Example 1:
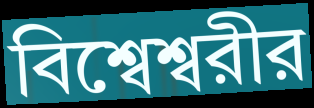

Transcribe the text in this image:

বিশ্বেশ্বরীর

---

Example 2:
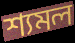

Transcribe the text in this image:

শ্যমল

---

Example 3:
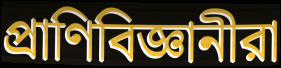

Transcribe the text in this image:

প্রাণিবিজ্ঞানীরা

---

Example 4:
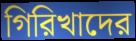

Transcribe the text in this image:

গিরিখাদের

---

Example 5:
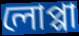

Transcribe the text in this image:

লোপ্পা